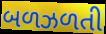
બળઝળતી